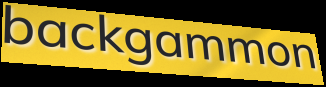
backgammon